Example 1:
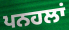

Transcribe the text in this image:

ਪਨਹਲਾਂ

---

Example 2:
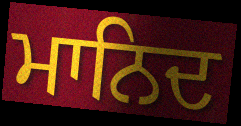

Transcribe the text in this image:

ਮਾਨਿਦ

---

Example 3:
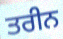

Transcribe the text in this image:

ਤਰੀਨ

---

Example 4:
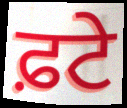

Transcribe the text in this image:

ਫ਼ਟੇ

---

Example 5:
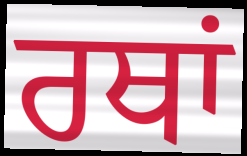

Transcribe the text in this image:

ਰਥਾਂ